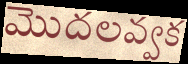
మొదలవ్వక